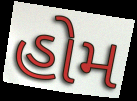
હોમ